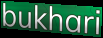
bukhari